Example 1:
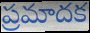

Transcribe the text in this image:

ప్రమాదక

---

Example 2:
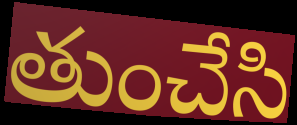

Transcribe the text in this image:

తుంచేసి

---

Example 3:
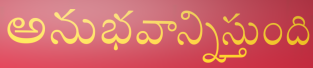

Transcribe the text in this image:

అనుభవాన్నిస్తుంది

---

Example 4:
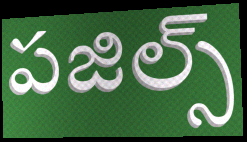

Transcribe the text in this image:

పజిల్స్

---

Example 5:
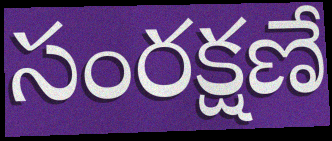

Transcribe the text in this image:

సంరక్షణే